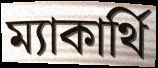
ম্যাকার্থি